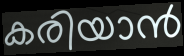
കരിയാൻ